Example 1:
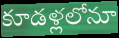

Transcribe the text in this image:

కూడళ్లలోనూ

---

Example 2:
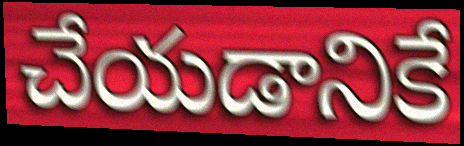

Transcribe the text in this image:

చేయడానికే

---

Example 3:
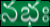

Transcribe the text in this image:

నభః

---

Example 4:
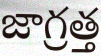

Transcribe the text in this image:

జాగ్రత్త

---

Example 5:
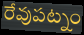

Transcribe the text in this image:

రేవుపట్నం